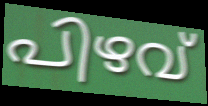
പിഴവ്